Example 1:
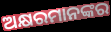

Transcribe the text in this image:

ଅକ୍ଷରମାନଙ୍କର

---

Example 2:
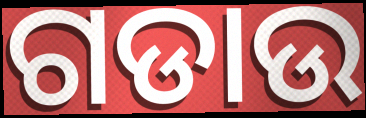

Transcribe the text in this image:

ଗଡାଉ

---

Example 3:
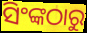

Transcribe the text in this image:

ସିଂଙ୍କଠାରୁ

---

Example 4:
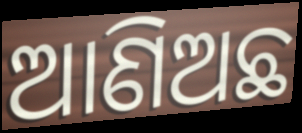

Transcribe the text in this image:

ଆଣିଅଛ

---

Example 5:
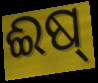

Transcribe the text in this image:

ଈଷ୍